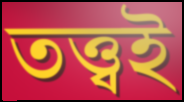
তত্ত্বই